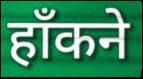
हाँकने